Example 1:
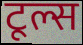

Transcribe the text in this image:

टूल्स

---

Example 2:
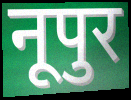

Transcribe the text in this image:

नूपुर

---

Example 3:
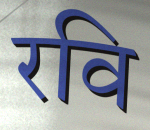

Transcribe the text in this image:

रवि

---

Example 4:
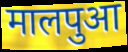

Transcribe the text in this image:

मालपुआ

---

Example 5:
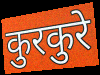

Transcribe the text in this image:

कुरकुरे